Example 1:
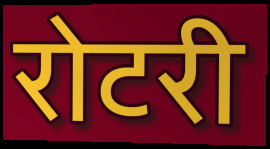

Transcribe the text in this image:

रोटरी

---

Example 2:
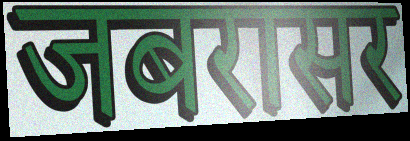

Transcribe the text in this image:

जबरासर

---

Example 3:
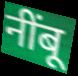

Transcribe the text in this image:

नींबू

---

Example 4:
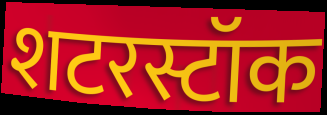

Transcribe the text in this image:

शटरस्टॉक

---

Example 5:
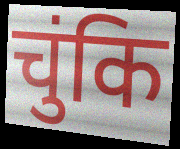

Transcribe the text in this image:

चुंकि